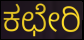
ಕಛೇರಿ